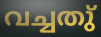
വച്ചതു്